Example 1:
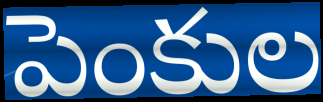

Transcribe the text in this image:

పెంకుల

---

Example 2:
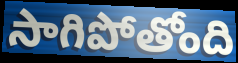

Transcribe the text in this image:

సాగిపోతోంది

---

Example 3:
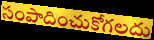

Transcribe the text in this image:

సంపాదించుకోగలదు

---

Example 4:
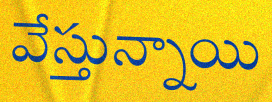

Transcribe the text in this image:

వేస్తున్నాయి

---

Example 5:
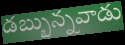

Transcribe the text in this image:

డబ్బున్నవాడు